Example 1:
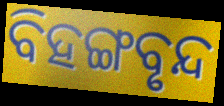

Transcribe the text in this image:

ବିହଙ୍ଗବୃନ୍ଦ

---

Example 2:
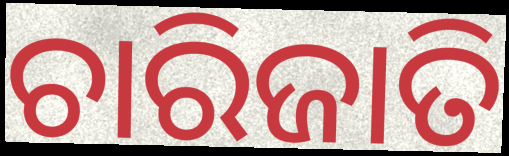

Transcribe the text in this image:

ଚାରିଜାତି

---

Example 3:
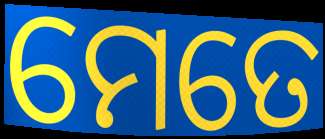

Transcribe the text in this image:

ମେତେ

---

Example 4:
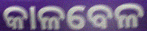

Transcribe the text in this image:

କାଳବେଳ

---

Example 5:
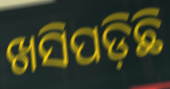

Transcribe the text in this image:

ଖସିପଡ଼ିଛି